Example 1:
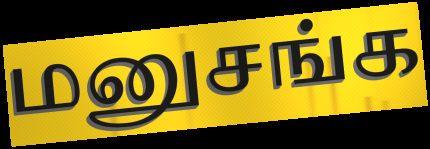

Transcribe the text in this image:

மனுசங்க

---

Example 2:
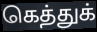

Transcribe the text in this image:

கெத்துக்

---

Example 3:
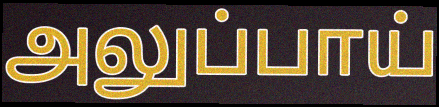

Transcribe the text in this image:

அலுப்பாய்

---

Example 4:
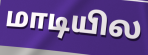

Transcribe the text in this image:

மாடியில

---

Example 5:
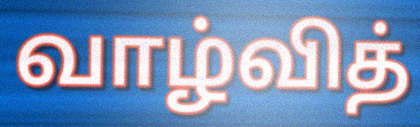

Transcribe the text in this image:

வாழ்வித்